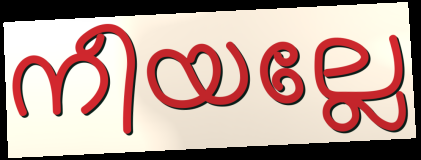
നീയല്ലേ